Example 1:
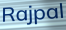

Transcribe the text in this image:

Rajpal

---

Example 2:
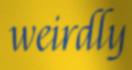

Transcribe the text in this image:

weirdly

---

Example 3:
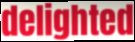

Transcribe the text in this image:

delighted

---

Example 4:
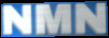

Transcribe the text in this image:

NMN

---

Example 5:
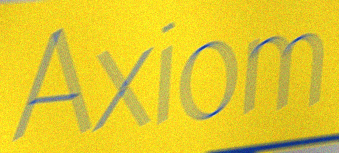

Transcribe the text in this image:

Axiom